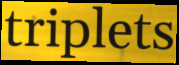
triplets